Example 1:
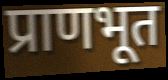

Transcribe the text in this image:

प्राणभूत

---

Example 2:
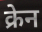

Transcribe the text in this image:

क्रेन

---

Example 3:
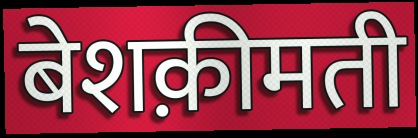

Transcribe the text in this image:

बेशक़ीमती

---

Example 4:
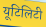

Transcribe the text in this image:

यूटिलिटी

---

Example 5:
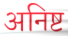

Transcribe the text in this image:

अनिष्ट